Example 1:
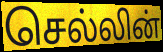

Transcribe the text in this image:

செல்லின்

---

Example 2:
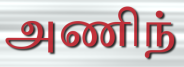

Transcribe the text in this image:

அணிந்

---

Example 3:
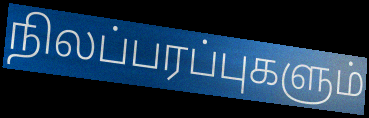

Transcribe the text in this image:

நிலப்பரப்புகளும்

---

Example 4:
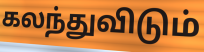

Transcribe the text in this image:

கலந்துவிடும்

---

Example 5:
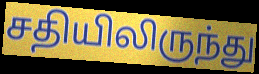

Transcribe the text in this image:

சதியிலிருந்து